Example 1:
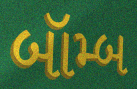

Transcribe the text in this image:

બૉમ્બ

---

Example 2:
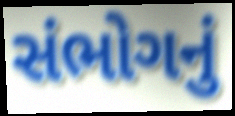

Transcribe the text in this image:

સંભોગનું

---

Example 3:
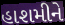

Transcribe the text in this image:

હાશમીને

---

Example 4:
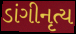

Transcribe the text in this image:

ડાંગીનૃત્ય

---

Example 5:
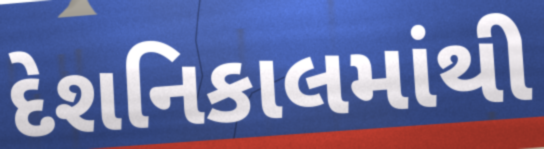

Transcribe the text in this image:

દેશનિકાલમાંથી